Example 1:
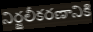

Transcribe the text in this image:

నిర్జలీకరణానికి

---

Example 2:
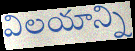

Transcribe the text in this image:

విలయాన్ని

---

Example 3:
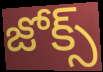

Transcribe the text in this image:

జోక్స్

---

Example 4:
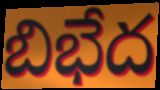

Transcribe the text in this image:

బిభేద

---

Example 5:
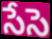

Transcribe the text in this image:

సేసె